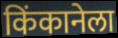
किंकानेला